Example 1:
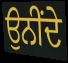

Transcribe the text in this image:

ਉਨੀਂਦੇ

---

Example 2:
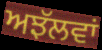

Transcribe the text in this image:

ਅਝੱਲਵਾਂ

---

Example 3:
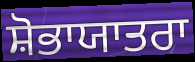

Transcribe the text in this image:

ਸ਼ੋਭਾਯਾਤਰਾ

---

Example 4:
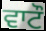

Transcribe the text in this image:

ਵਾਟੌ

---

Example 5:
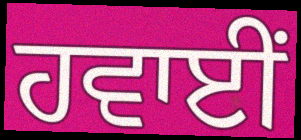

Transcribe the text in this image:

ਹਵਾਈਂ